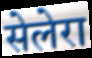
सेलेरा